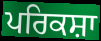
ਪਰਿਕਸ਼ਾ